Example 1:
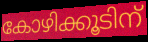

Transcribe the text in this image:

കോഴിക്കൂടിന്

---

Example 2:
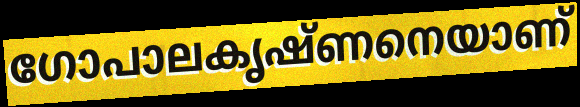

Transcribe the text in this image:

ഗോപാലകൃഷ്ണനെയാണ്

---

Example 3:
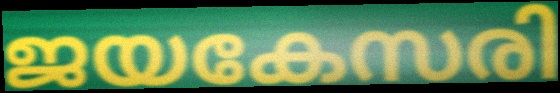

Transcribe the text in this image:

ജയകേസരി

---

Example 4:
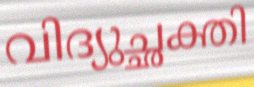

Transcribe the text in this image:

വിദ്യുച്ഛക്തി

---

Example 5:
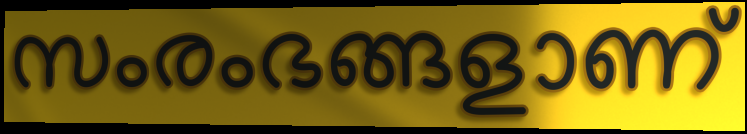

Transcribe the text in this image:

സംരംഭങ്ങളാണ്